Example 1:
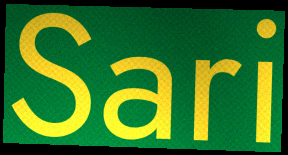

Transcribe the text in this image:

Sari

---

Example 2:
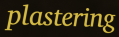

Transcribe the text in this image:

plastering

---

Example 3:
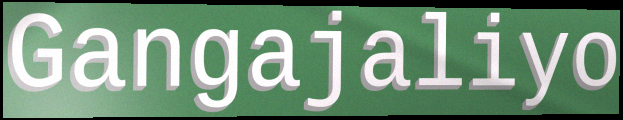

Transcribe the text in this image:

Gangajaliyo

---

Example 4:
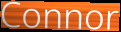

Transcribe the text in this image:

Connor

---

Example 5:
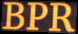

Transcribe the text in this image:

BPR